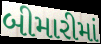
બીમારીમાં